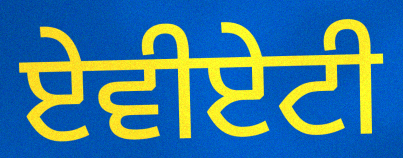
ਏਵੀਏਟੀ